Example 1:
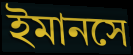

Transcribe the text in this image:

ইমানসে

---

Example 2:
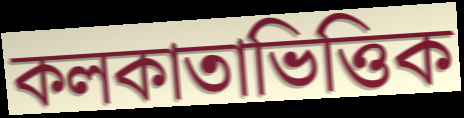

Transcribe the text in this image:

কলকাতাভিত্তিক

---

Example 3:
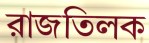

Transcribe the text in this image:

রাজতিলক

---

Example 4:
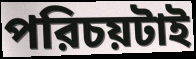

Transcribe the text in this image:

পরিচয়টাই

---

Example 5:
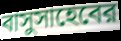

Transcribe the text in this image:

বাসুসাহেবের